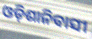
ଓଡ଼ିଶାନିବାସୀ